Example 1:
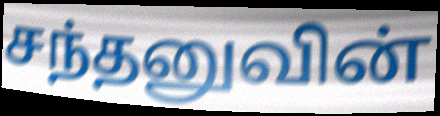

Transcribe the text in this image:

சந்தனுவின்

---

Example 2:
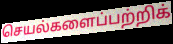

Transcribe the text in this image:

செயல்களைப்பற்றிக்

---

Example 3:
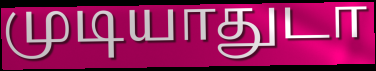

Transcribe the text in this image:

முடியாதுடா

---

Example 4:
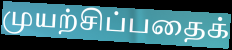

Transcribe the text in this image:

முயற்சிப்பதைக்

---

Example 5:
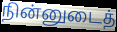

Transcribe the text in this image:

நின்னுடைத்